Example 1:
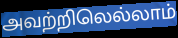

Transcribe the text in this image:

அவற்றிலெல்லாம்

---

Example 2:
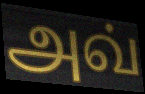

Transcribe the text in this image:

அவ்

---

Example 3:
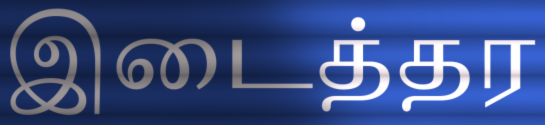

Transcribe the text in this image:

இடைத்தர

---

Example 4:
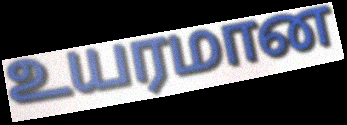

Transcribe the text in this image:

உயரமான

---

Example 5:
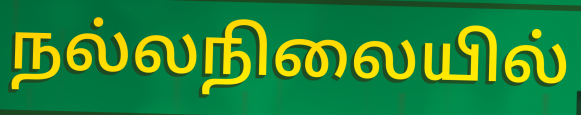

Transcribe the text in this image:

நல்லநிலையில்